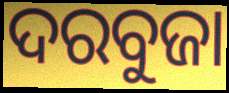
ଦରବୁଜା